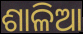
ଶାଳିଆ